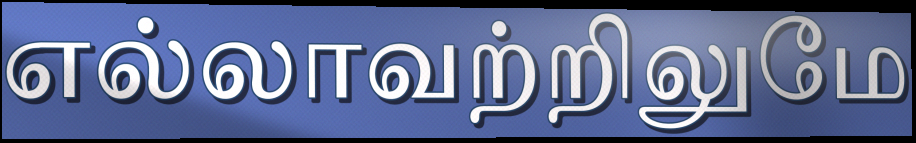
எல்லாவற்றிலுமே